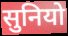
सुनियो